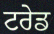
ਟਰੇਡ